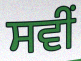
ਸਵੀਂ